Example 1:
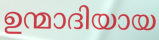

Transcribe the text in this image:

ഉന്മാദിയായ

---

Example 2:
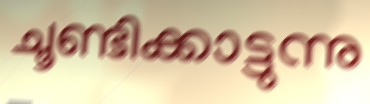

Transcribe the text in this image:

ചൂണ്ടിക്കാട്ടുന്നു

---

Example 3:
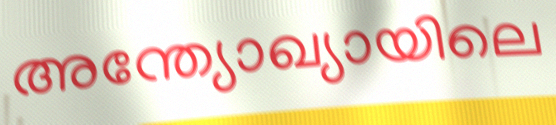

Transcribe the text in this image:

അന്ത്യോഖ്യായിലെ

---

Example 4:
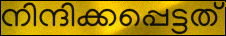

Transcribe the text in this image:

നിന്ദിക്കപ്പെട്ടത്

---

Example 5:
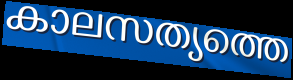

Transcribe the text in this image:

കാലസത്യത്തെ